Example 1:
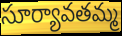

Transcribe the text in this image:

సూర్యావతమ్మ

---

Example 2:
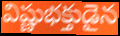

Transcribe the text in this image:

విష్ణుభక్తుడైన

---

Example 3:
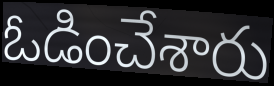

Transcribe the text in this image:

ఓడించేశారు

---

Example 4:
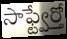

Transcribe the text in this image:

సాఫ్ట్వేర్తో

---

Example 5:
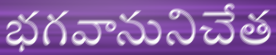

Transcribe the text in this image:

భగవానునిచేత